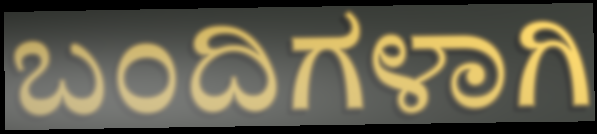
ಬಂದಿಗಳಾಗಿ